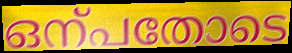
ഒന്പതോടെ